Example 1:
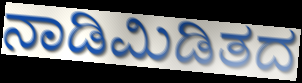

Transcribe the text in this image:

ನಾಡಿಮಿಡಿತದ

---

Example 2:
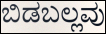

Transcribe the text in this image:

ಬಿಡಬಲ್ಲವು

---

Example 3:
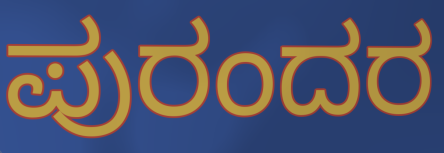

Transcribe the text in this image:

ಪುರಂದರ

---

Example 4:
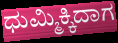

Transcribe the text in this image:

ಧುಮ್ಮಿಕ್ಕಿದಾಗ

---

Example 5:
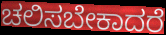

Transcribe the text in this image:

ಚಲಿಸಬೇಕಾದರೆ